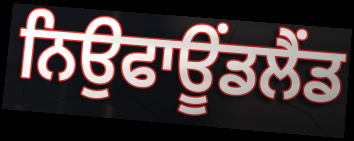
ਨਿਉਫਾਊਂਡਲੈਂਡ